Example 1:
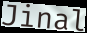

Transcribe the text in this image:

Jinal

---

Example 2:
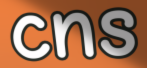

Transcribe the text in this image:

cns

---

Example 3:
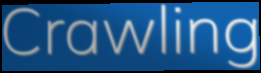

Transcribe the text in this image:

Crawling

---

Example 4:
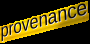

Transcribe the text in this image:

provenance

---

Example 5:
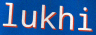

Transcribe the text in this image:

lukhi